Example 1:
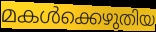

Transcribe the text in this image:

മകൾക്കെഴുതിയ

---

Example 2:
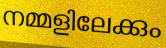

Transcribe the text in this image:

നമ്മളിലേക്കും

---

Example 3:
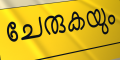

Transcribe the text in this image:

ചേരുകയും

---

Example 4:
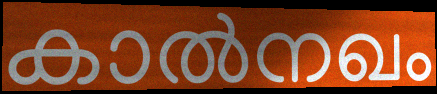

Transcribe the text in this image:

കാൽനഖം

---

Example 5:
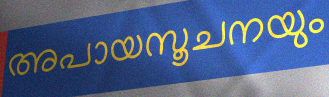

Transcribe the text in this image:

അപായസൂചനയും